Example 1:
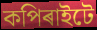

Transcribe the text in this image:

কপিৰাইটে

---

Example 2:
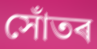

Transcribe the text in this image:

সোঁতৰ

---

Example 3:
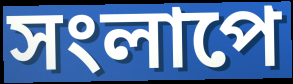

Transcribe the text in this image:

সংলাপে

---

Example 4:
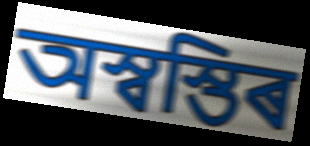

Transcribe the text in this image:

অস্বস্তিৰ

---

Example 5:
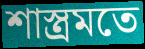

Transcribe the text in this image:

শাস্ত্ৰমতে